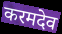
करमदेव